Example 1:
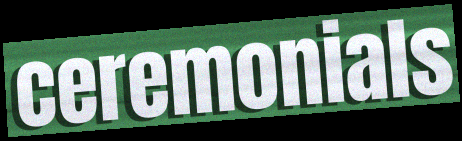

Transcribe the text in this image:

ceremonials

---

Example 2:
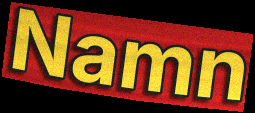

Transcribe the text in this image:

Namn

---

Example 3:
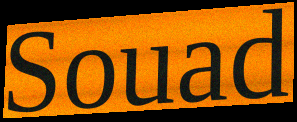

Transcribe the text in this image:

Souad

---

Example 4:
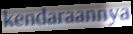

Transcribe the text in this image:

kendaraannya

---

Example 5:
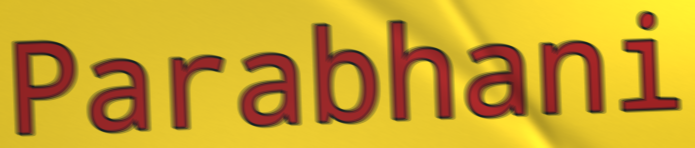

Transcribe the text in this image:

Parabhani